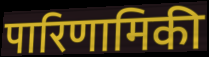
पारिणामिकी